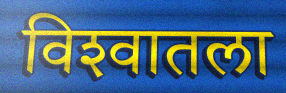
विश्‍वातला